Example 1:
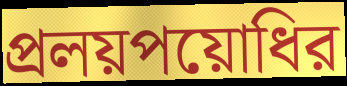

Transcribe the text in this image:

প্রলয়পয়োধির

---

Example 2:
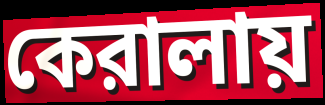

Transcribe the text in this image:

কেরালায়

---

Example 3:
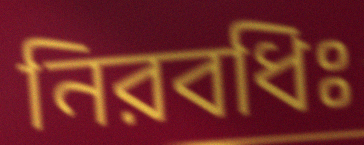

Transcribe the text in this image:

নিরবধিঃ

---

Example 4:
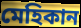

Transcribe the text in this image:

মেহিকান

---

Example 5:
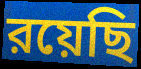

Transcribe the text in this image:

রয়েছি